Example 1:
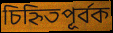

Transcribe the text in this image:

চিহ্নিতপূর্বক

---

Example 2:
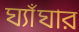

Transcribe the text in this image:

ঘ্যাঁঘার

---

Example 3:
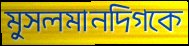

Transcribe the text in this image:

মুসলমানদিগকে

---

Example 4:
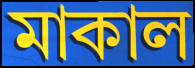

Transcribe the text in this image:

মাকাল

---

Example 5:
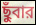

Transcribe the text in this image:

ছুঁবার